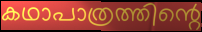
കഥാപാത്രത്തിന്റെ